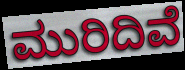
ಮುರಿದಿವೆ